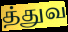
த்துவ